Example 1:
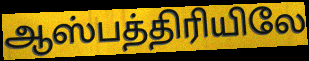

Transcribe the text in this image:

ஆஸ்பத்திரியிலே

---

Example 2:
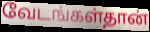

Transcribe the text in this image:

வேடங்கள்தான்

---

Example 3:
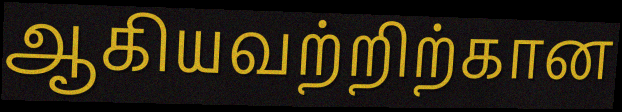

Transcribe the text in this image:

ஆகியவற்றிற்கான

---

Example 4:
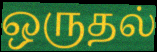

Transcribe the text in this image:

ஒருதல்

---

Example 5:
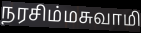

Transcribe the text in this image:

நரசிம்மசுவாமி